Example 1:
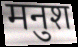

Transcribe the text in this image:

मनुश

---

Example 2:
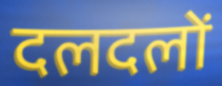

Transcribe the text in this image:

दलदलों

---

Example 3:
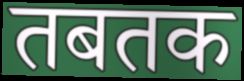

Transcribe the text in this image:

तबतक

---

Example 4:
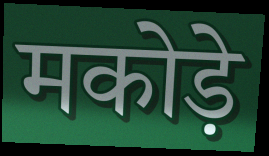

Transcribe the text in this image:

मकोड़े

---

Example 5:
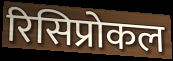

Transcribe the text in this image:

रिसिप्रोकल